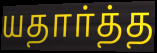
யதார்த்த